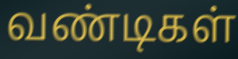
வண்டிகள்